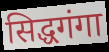
सिद्धगंगा